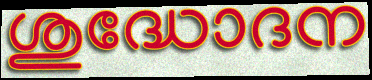
ശുദ്ധോദന